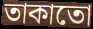
তাকাতো